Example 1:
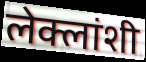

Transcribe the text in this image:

लेक्लांशी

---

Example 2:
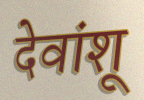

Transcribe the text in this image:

देवांशू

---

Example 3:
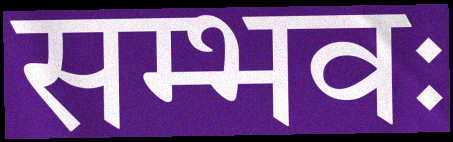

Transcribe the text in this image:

सम्भवः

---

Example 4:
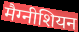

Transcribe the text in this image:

मैग्नीशियन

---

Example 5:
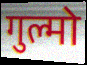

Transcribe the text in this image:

गुल्मो